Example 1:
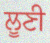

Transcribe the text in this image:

ਲੂਣੀ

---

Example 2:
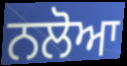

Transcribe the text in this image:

ਨਲੋਆ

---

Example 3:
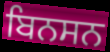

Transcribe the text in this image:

ਬਿਨਸਨ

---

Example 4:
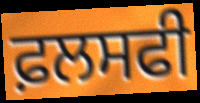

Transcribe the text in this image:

ਫ਼ਲਸਫੀ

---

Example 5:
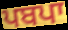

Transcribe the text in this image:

ਪਬਪਾ